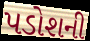
પડોશની